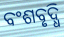
ବଂଶବୃଦ୍ଧି